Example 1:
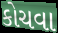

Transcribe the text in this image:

કોચવા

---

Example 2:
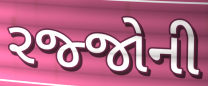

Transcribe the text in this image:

રજ્જોની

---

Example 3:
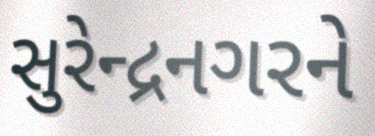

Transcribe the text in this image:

સુરેન્દ્રનગરને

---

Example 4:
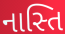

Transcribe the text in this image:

નાસ્તિ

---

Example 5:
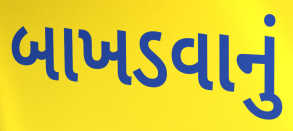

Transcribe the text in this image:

બાખડવાનું